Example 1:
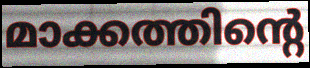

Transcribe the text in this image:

മാക്കത്തിന്റെ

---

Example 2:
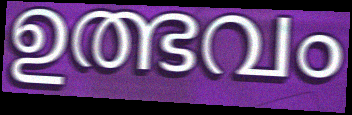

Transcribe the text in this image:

ഉത്ഭവം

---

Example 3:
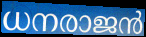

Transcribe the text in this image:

ധനരാജൻ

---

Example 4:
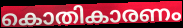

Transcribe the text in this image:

കൊതികാരണം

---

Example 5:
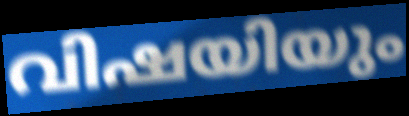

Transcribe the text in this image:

വിഷയിയും